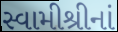
સ્વામીશ્રીનાં